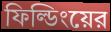
ফিল্ডিংয়ের